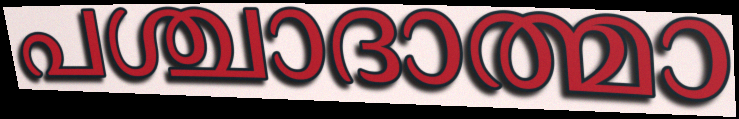
പശ്ചാദാത്മാ